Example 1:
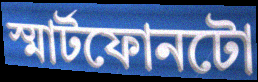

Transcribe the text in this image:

স্মাৰ্টফোনটো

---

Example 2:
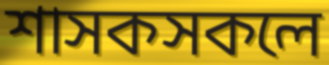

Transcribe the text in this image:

শাসকসকলে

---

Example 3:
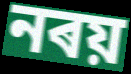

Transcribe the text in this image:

নৰয়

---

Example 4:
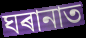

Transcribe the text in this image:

ঘৰানাত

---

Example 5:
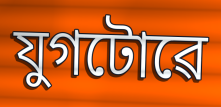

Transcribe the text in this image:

যুগটোৱে